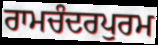
ਰਾਮਚੰਦਰਪੁਰਮ